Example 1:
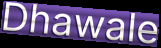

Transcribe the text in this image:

Dhawale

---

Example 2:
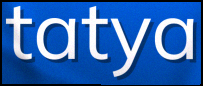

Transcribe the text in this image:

tatya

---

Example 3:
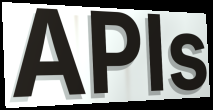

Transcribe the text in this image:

APIs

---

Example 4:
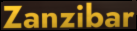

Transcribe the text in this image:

Zanzibar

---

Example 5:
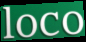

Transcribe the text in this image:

loco